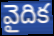
వైదిక